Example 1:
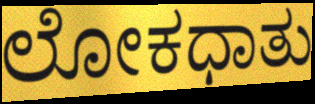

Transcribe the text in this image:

ಲೋಕಧಾತು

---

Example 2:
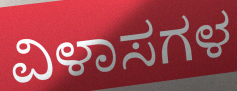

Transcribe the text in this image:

ವಿಳಾಸಗಳ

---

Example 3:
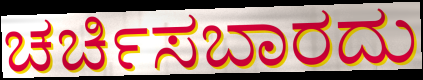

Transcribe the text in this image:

ಚರ್ಚಿಸಬಾರದು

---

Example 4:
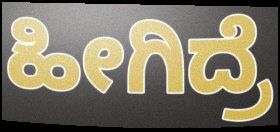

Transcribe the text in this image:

ಹೀಗಿದ್ರೆ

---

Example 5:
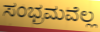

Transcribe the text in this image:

ಸಂಭ್ರಮವೆಲ್ಲ